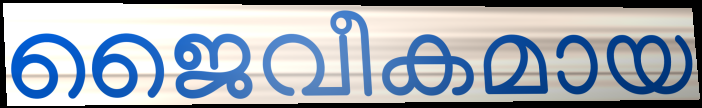
ജൈവീകമായ